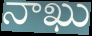
నాఖు